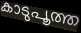
കാടുപൂത്ത